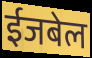
ईजबेल